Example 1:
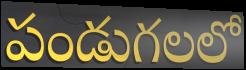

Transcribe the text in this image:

పండుగలలో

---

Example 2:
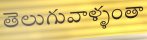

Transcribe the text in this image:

తెలుగువాళ్ళంతా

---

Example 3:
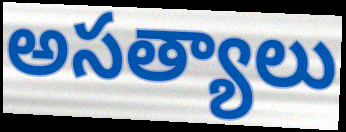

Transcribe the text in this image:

అసత్యాలు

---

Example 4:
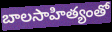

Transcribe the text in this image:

బాలసాహిత్యంతో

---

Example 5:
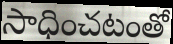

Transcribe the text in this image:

సాధించటంతో